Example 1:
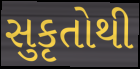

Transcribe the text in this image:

સુકૃતોથી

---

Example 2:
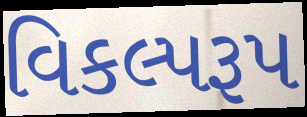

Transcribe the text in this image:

વિકલ્પરૂપ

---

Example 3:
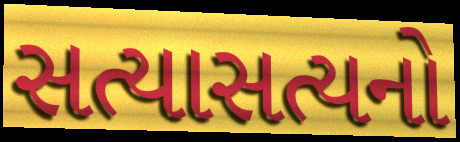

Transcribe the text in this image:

સત્યાસત્યનો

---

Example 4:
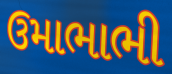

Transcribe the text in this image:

ઉમાભાભી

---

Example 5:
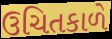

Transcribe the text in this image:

ઉચિતકાળે